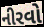
નીરવો